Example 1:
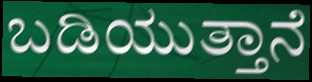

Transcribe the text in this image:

ಬಡಿಯುತ್ತಾನೆ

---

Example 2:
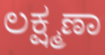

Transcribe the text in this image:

ಲಕ್ಷ್ಮಣಾ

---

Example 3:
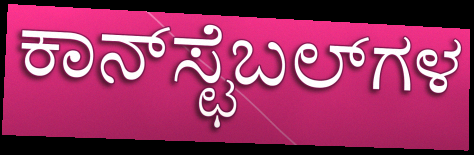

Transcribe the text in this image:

ಕಾನ್‌ಸ್ಟೆಬಲ್‌ಗಳ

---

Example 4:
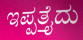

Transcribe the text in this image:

ಇಪ್ಪತ್ತೈದು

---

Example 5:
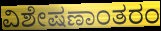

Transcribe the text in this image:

ವಿಶೇಷಣಾಂತರಂ